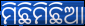
ମିଛିମିଛିଆ